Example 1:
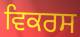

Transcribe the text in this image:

ਵਿਕਰਸ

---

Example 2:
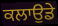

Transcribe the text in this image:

ਕਲਾਉਡੇ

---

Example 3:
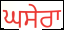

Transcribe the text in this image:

ਘਸੇਰਾ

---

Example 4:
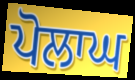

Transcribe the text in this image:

ਪੋਲਾਘ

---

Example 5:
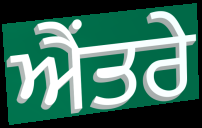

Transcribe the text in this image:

ਐਂਤਰੇ